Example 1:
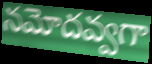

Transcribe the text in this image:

నమోదవ్వగా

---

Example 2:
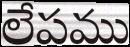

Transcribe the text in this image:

లేపము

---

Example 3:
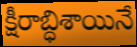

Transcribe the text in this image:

క్షీరాబ్ధిశాయినే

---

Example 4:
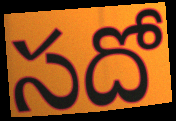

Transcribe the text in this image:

సదో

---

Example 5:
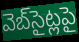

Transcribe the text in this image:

వెబ్‌సైట్లపై